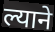
ल्याने